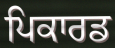
ਪਿਕਾਰਡ